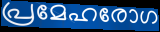
പ്രമേഹരോഗ